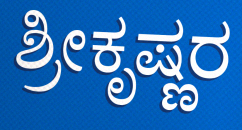
ಶ್ರೀಕೃಷ್ಣರ